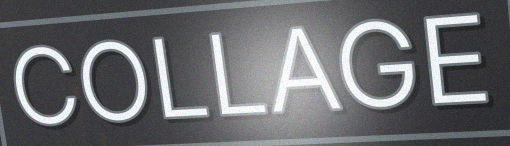
COLLAGE